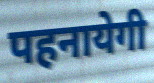
पहनायेगी